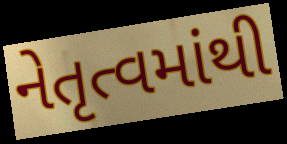
નેતૃત્વમાંથી